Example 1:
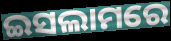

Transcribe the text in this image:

ଇସଲାମରେ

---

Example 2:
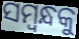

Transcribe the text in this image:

ସମ୍ବନ୍ଧକୁ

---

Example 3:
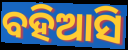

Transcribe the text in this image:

ବହିଆସି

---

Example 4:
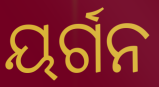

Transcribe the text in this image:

ୟର୍ଗନ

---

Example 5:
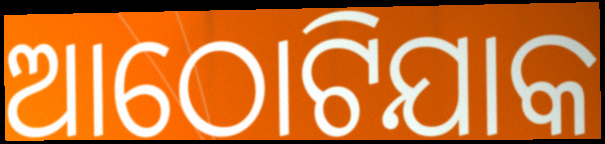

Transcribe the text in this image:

ଆଠୋଟିଯାକ